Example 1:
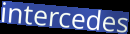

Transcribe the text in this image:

intercedes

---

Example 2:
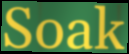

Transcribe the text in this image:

Soak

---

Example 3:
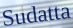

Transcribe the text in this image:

Sudatta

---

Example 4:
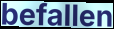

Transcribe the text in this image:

befallen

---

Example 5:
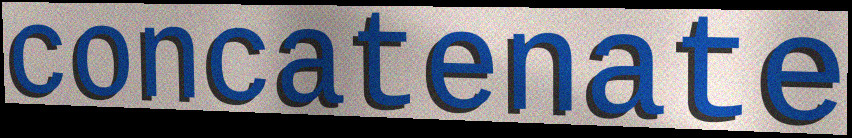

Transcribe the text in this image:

concatenate